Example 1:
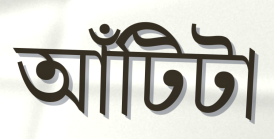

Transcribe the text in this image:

আঁটিটা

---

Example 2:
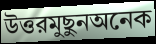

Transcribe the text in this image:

উত্তরমুছুনঅনেক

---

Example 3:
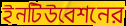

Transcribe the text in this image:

ইনটিউবেশনের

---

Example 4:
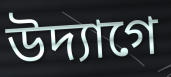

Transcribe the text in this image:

উদ্যাগে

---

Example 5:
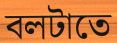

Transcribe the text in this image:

বলটাতে